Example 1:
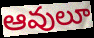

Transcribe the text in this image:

ఆవులూ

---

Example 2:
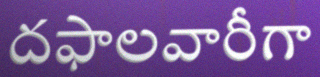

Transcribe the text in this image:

దఫాలవారీగా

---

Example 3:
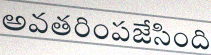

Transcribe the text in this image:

అవతరింపజేసింది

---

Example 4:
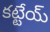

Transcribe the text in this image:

కట్టేయ్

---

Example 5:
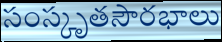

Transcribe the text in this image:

సంస్కృతసౌరభాలు